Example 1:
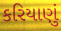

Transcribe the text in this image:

કરિયાણું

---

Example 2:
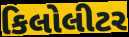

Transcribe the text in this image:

કિલોલીટર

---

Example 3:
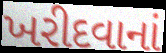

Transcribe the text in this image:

ખરીદવાનાં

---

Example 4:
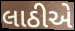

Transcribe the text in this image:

લાઠીએ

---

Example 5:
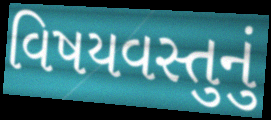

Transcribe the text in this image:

વિષયવસ્તુનું